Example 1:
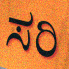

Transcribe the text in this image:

ಸರಿ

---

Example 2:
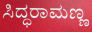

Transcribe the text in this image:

ಸಿದ್ಧರಾಮಣ್ಣ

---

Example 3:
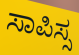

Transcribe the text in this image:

ಸಾಪಿಸ್ಸ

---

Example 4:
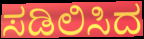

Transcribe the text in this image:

ಸಡಿಲಿಸಿದ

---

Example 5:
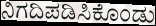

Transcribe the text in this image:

ನಿಗದಿಪಡಿಸಿಕೊಂಡು